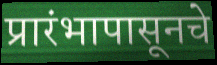
प्रारंभापासूनचे